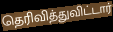
தெரிவித்துவிட்டார்